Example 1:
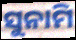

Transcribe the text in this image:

ସୁନାମି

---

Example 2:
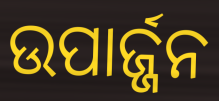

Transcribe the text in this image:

ଉପାର୍ଜ୍ଜନ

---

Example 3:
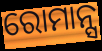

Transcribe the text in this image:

ରୋମାନ୍ସ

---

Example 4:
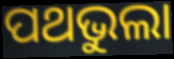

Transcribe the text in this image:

ପଥଭୁଲା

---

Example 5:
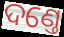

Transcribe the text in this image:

ଦଣ୍ତେ